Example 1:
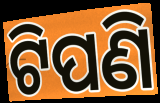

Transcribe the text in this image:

ଟିପଣି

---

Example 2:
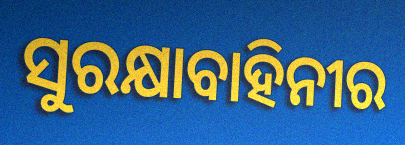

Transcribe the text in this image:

ସୁରକ୍ଷାବାହିନୀର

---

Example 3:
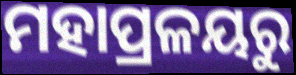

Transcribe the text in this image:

ମହାପ୍ରଳୟରୁ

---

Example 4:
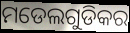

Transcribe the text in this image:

ମଡେଲଗୁଡିକର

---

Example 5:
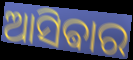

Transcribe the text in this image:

ଆସିଵାର